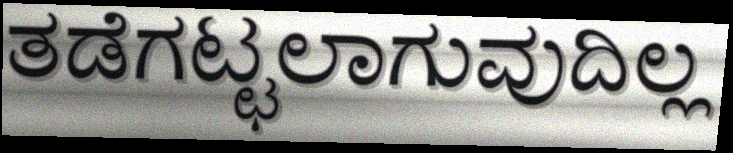
ತಡೆಗಟ್ಟಲಾಗುವುದಿಲ್ಲ